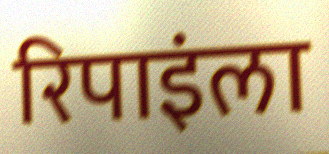
रिपाइंला